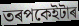
তৰপকেইটাৰ